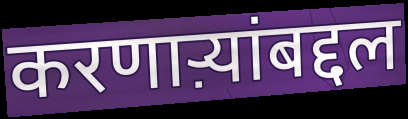
करणाऱ्‍यांबद्दल